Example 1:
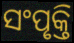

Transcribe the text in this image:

ସଂପୃକ୍ତି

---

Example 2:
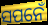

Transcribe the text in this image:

ସପନେଁ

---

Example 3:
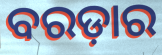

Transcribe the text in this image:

ବରଡ଼ାର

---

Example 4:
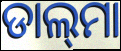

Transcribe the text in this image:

ଡାଲ୍‍ମା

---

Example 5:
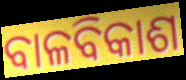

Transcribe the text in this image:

ବାଳବିକାଶ